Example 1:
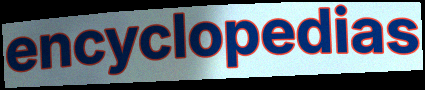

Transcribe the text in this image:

encyclopedias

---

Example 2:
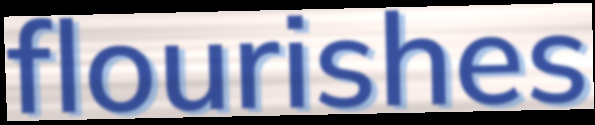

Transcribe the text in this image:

flourishes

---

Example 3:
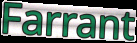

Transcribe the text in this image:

Farrant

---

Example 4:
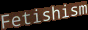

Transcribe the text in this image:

Fetishism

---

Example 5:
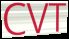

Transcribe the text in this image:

CVT